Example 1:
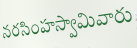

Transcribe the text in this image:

నరసింహస్వామివారు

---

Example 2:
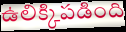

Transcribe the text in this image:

ఉలిక్కిపడింది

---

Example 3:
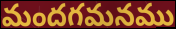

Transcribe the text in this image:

మందగమనము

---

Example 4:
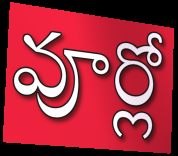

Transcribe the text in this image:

వూర్లో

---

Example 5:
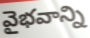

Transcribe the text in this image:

వైభవాన్ని